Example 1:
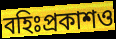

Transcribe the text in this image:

বহিঃপ্রকাশও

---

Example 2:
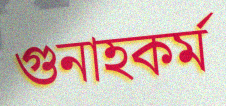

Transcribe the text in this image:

গুনাহকর্ম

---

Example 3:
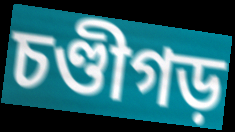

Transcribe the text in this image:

চণ্ডীগড়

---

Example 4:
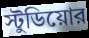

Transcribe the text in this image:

স্টুডিয়োর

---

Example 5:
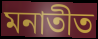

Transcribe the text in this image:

মনাতীত